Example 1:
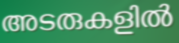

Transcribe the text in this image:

അടരുകളിൽ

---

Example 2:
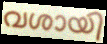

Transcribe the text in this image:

വശായി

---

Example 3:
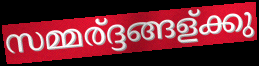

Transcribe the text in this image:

സമ്മര്ദ്ദങ്ങള്ക്കു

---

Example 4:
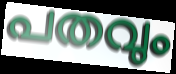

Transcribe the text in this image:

പതവും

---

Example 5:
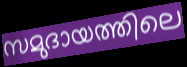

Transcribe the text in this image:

സമുദായത്തിലെ